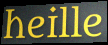
heille